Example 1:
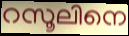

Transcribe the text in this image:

റസൂലിനെ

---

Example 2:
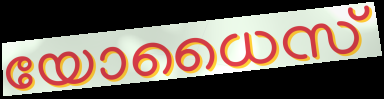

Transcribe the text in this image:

യോധൈസ്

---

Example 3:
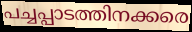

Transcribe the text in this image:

പച്ചപ്പാടത്തിനക്കരെ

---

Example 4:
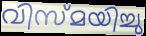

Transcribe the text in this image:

വിസ്മയിച്ചു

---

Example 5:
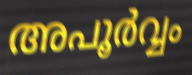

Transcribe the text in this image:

അപൂർവ്വം